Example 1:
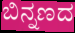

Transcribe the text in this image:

ಬಿನ್ನಣದ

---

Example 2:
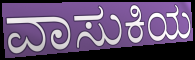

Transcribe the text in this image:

ವಾಸುಕಿಯ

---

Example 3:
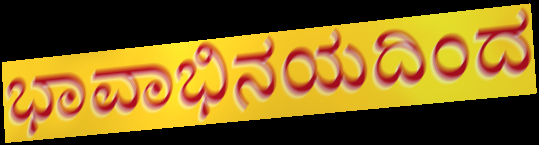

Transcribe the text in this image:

ಭಾವಾಭಿನಯದಿಂದ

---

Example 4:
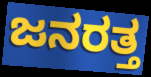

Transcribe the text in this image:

ಜನರತ್ತ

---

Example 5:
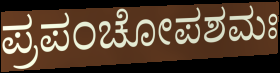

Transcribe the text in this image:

ಪ್ರಪಂಚೋಪಶಮಃ